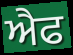
ਐਫ